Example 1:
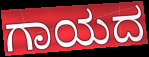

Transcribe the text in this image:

ಗಾಯದ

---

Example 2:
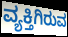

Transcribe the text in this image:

ವ್ಯಕ್ತಿಗಿರುವ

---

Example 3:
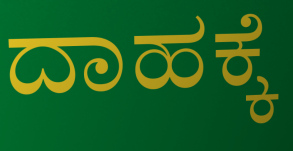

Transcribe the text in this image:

ದಾಹಕ್ಕೆ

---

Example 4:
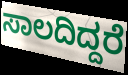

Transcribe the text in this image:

ಸಾಲದಿದ್ದರೆ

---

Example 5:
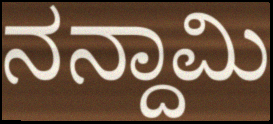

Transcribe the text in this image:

ನನ್ದಾಮಿ